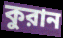
কুরান